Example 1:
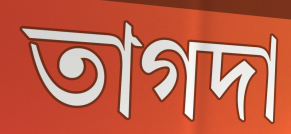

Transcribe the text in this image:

তাগদা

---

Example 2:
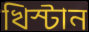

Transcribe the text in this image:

খিস্টান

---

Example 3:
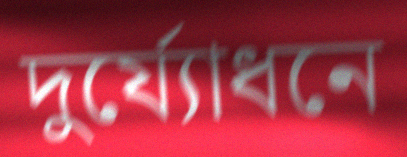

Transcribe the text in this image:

দুর্য্যোধনে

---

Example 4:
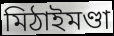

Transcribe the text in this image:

মিঠাইমণ্ডা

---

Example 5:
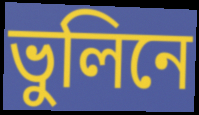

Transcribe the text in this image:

ভুলিনে